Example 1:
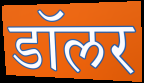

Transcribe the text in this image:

डॉलर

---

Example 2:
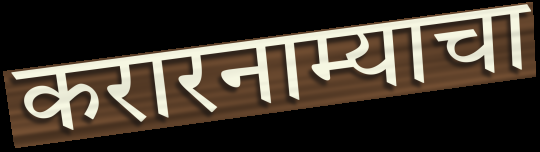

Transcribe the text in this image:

करारनाम्याचा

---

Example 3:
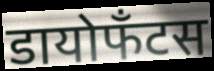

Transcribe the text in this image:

डायोफँटस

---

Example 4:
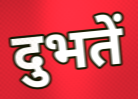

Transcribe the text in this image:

दुभतें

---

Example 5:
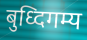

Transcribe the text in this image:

बुध्दिगम्य